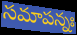
సమాపన్నః